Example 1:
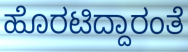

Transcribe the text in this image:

ಹೊರಟಿದ್ದಾರಂತೆ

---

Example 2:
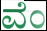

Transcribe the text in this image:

ವೆಂ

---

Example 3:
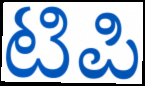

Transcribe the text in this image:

ಟಿಪಿ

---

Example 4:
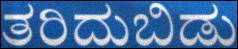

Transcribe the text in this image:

ತರಿದುಬಿಡು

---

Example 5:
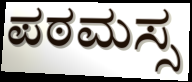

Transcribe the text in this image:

ಪಠಮಸ್ಸ